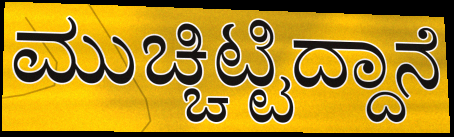
ಮುಚ್ಚಿಟ್ಟಿದ್ದಾನೆ